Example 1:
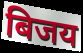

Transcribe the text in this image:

बिजय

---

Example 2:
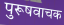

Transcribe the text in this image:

पुरूषवाचक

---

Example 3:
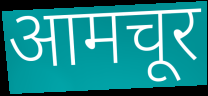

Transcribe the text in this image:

आमचूर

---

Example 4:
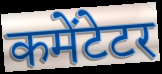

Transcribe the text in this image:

कमेंटेटर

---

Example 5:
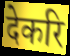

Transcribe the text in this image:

देकरि